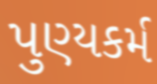
પુણ્યકર્મ